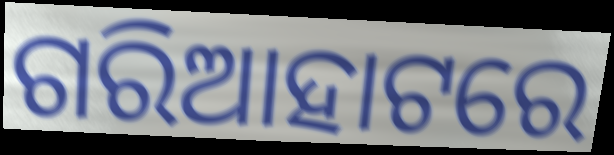
ଗରିଆହାଟରେ